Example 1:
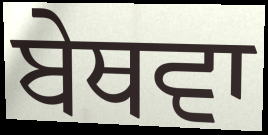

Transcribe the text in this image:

ਬੇਥਵਾ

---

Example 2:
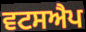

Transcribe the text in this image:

ਵਟਸਐਪ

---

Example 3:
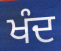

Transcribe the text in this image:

ਖੰਦ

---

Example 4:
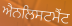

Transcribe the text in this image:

ਐਨਲਿਸਟਮੈਂਟ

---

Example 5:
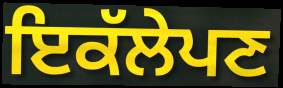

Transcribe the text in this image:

ਇਕੱਲੇਪਣ